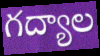
గద్యాల